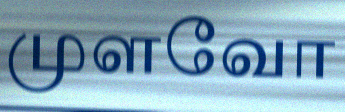
முளவோ